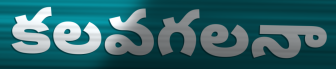
కలవగలనా